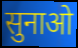
सुनाओ